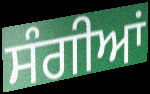
ਸੰਗੀਆਂ